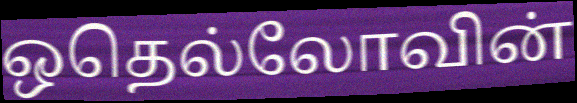
ஒதெல்லோவின்